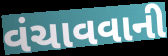
વંચાવવાની